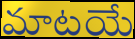
మాటయే